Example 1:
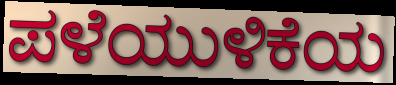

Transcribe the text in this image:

ಪಳೆಯುಳಿಕೆಯ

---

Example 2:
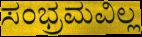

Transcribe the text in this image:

ಸಂಭ್ರಮವಿಲ್ಲ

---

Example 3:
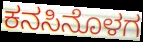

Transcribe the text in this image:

ಕನಸಿನೊಳಗ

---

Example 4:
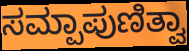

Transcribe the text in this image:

ಸಮ್ಪಾಪುಣಿತ್ವಾ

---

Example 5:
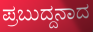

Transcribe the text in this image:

ಪ್ರಬುದ್ದನಾದ